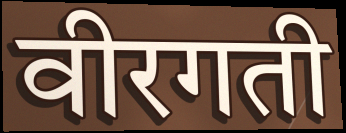
वीरगती